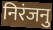
निरंजनु